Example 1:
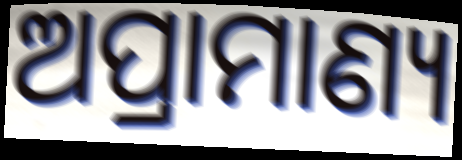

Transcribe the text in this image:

ଅପ୍ରାମାଣ୍ୟ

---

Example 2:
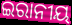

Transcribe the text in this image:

ଇରାନୀୟ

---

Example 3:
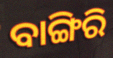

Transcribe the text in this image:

ବାଙ୍ଗିରି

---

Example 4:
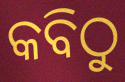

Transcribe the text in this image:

କବିଠୁ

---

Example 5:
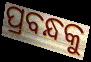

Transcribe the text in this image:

ପ୍ରବନ୍ଧକୁ